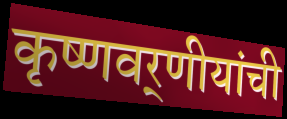
कृष्णवर्णीयांची